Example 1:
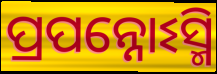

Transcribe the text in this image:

ପ୍ରପନ୍ନୋଽସ୍ମି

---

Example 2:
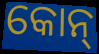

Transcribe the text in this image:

କୋନ୍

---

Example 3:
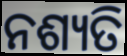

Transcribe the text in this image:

ନଶ୍ୟତି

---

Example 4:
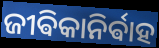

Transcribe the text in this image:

ଜୀଵିକାନିର୍ଵାହ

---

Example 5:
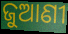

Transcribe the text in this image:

ଜୁଆଣୀ